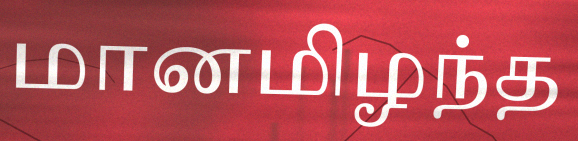
மானமிழந்த